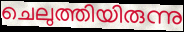
ചെലുത്തിയിരുന്നു